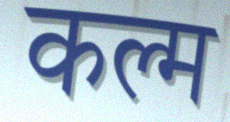
कल्म